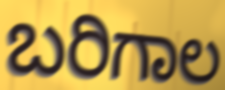
ಬರಿಗಾಲ